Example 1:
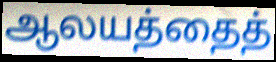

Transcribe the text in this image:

ஆலயத்தைத்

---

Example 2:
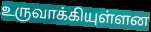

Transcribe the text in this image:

உருவாக்கியுள்ளன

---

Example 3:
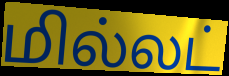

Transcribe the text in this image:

மில்லட்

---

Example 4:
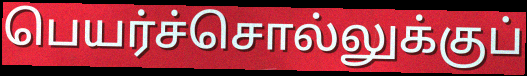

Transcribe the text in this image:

பெயர்ச்சொல்லுக்குப்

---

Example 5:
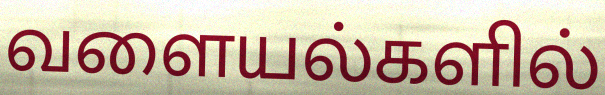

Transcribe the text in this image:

வளையல்களில்